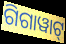
ଗିଗାୱାଟ୍